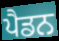
ਪੈਡਨ